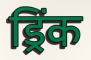
ड्रिंक